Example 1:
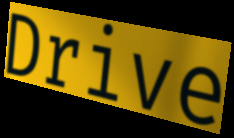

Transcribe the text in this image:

Drive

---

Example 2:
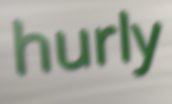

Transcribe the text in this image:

hurly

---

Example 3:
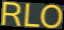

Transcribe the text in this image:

RLO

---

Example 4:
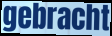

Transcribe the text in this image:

gebracht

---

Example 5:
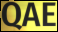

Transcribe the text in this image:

QAE